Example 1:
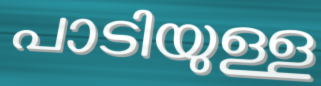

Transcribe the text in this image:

പാടിയുള്ള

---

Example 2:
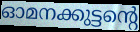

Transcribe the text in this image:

ഓമനക്കുട്ടന്റെ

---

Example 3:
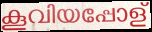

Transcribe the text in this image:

കൂവിയപ്പോള്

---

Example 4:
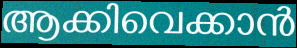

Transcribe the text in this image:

ആക്കിവെക്കാൻ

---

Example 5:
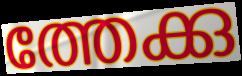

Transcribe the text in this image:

ത്തേക്കു